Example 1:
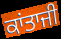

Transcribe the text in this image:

ਕਾਂਤਾਜੀ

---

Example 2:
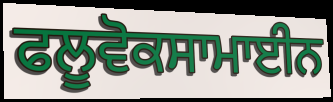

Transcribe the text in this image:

ਫਲੂਵੋਕਸਾਮਾਈਨ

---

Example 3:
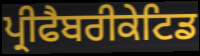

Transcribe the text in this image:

ਪ੍ਰੀਫੈਬਰੀਕੇਟਿਡ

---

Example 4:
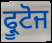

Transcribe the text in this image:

ਫ੍ਰੂਟੋਜ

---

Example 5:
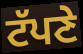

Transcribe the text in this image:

ਟੱਪਣੇ